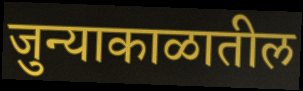
जुन्याकाळातील